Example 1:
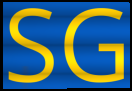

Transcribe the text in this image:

SG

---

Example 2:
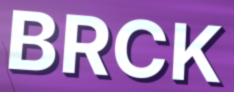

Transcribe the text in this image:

BRCK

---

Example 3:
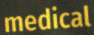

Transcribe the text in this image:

medical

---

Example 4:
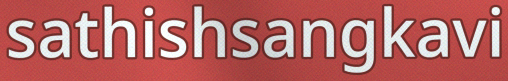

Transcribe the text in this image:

sathishsangkavi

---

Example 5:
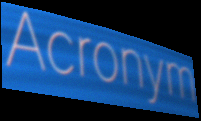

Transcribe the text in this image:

Acronym